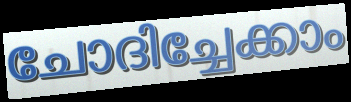
ചോദിച്ചേക്കാം